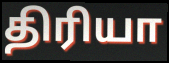
திரியா